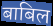
बाबिल